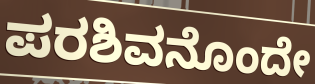
ಪರಶಿವನೊಂದೇ